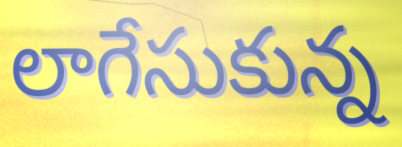
లాగేసుకున్న